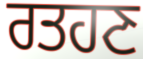
ਰਤਹਣ